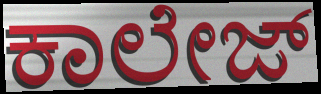
ಕಾಲೇಜ್